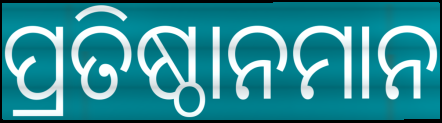
ପ୍ରତିଷ୍ଠାନମାନ